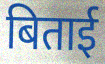
बिताई